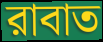
রাবাত